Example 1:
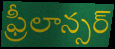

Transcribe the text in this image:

ఫ్రీలాన్సర్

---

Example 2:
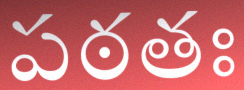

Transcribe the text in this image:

పఠతః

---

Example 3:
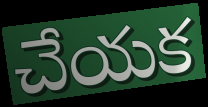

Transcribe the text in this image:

చేయక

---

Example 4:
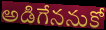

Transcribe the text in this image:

అడిగేననుకో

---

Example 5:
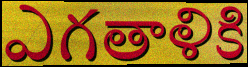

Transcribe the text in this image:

ఎగతాళికి